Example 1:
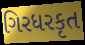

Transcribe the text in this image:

ગિરધરકૃત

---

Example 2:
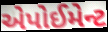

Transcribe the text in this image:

એપોઈમેન્ટ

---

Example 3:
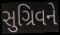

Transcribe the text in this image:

સુગ્રિવને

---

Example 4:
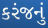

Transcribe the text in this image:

કરંજનું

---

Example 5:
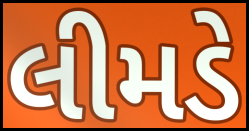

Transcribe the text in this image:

લીમડે